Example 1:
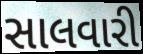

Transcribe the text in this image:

સાલવારી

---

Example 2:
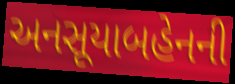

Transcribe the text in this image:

અનસૂયાબહેનની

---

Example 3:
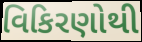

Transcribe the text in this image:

વિકિરણોથી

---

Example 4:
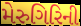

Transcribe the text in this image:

મેરુગિરિની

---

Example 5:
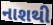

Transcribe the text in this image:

નાશથી